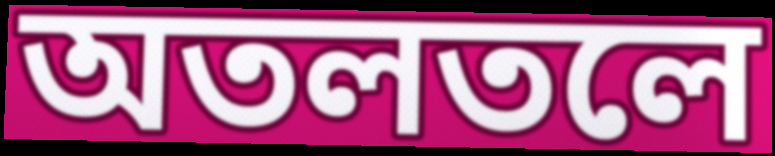
অতলতলে